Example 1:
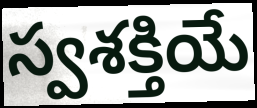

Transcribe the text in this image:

స్వశక్తియే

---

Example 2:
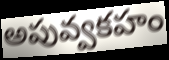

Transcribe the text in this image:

అపువ్వకహం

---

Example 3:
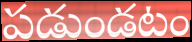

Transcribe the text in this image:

పడుండటం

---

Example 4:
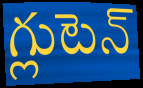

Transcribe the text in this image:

గ్లుటెన్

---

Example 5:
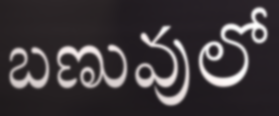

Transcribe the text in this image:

బణువులో